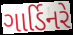
ગાર્ડિનરે